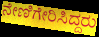
ನೇಣಿಗೇರಿಸಿದ್ದರು